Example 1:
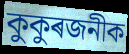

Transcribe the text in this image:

কুকুৰজনীক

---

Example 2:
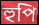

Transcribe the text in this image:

হুপি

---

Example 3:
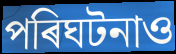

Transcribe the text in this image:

পৰিঘটনাও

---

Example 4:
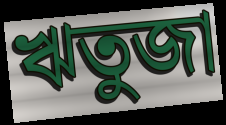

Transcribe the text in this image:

ঋতুজা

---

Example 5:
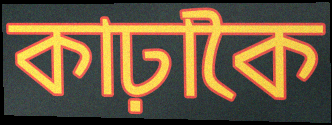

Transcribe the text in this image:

কাঢ়াকৈ